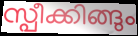
സ്പീക്കിങ്ങും